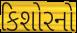
કિશોરનો